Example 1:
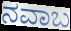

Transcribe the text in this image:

ನವಾಬ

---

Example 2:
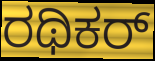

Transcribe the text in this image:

ರಥಿಕರ್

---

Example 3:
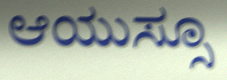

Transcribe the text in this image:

ಆಯುಸ್ಸೂ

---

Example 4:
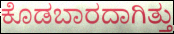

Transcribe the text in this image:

ಕೊಡಬಾರದಾಗಿತ್ತು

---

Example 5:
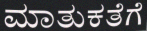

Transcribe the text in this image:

ಮಾತುಕತೆಗೆ